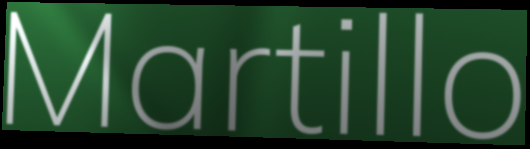
Martillo